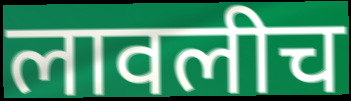
लावलीच